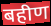
बहीण